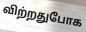
விற்றதுபோக